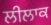
ਲੀਲਾਕ